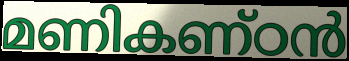
മണികണ്ഠൻ